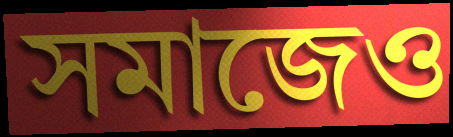
সমাজেও